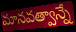
మానవత్వాన్నే